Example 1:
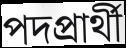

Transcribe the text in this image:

পদপ্রার্থী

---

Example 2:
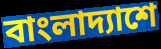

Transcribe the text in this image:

বাংলাদ্যাশে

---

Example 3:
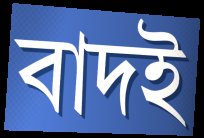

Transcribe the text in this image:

বাদই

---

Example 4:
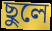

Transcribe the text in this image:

ছুলে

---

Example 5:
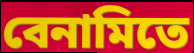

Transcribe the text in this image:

বেনামিতে